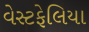
વેસ્ટફેલિયા